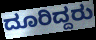
ದೂರಿದ್ದರು